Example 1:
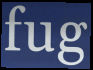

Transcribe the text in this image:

fug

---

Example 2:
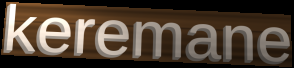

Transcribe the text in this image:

keremane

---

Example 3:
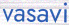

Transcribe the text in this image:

vasavi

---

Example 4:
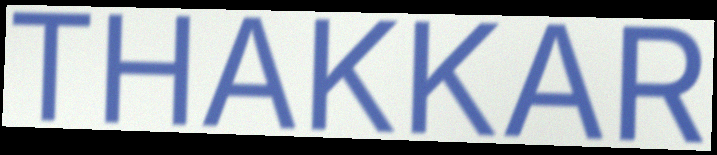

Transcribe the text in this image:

THAKKAR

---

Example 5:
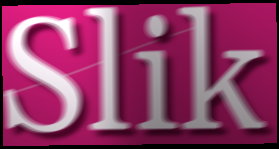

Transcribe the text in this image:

Slik